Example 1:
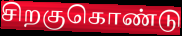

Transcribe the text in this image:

சிறகுகொண்டு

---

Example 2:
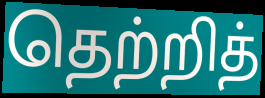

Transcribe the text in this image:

தெற்றித்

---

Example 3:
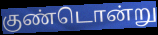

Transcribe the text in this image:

குண்டொன்று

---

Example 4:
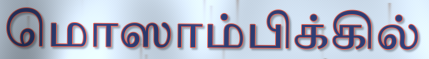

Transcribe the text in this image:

மொஸாம்பிக்கில்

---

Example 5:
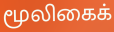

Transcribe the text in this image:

மூலிகைக்